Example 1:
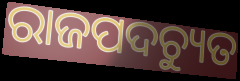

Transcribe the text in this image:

ରାଜପଦଚ୍ୟୁତ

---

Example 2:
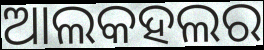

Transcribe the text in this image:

ଆଲକହଲର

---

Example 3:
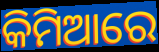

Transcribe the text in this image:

କିମିଆରେ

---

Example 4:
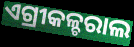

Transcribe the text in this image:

ଏଗ୍ରୀକଳ୍ଚରାଲ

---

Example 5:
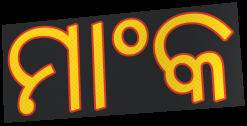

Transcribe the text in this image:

ମାଂକ